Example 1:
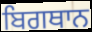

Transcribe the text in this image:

ਬਿਗਥਾਨ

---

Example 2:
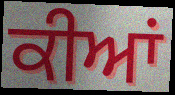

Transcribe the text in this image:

ਕੀਆਂ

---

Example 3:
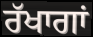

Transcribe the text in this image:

ਰੱਖਾਗਾਂ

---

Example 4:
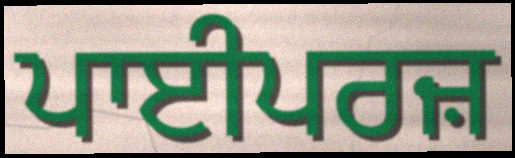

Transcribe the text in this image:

ਪਾਈਪਰਜ਼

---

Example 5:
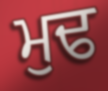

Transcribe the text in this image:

ਮੁਢ